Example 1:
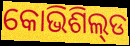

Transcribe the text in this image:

କୋଭିଶିଲ୍‌ଡ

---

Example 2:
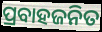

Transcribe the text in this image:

ପ୍ରବାହଜନିତ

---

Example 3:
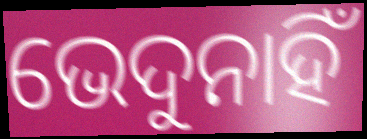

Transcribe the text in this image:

ଭେଦୁନାହିଁ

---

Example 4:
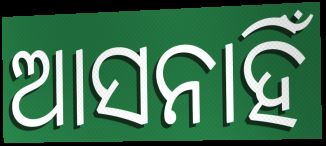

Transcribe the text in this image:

ଆସନାହିଁ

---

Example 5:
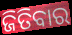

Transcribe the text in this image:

ଜିତିବାର